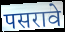
पसरावे